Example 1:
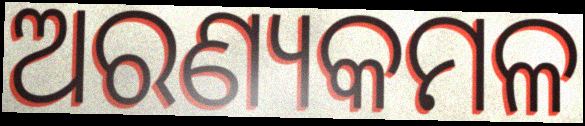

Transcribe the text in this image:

ଅରଣ୍ୟକମଳ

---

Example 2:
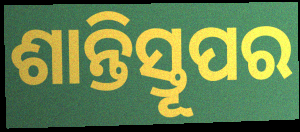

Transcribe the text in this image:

ଶାନ୍ତିସ୍ତୂପର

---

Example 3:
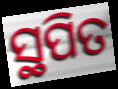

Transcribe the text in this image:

ସ୍ଥପିତ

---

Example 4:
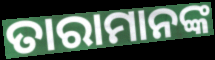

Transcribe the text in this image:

ତାରାମାନଙ୍କ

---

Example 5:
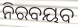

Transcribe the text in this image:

ନିରବୟବ